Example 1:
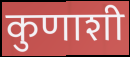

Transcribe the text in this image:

कुणाशी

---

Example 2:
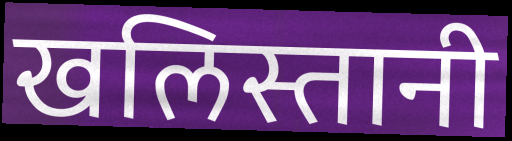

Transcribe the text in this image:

खलिस्तानी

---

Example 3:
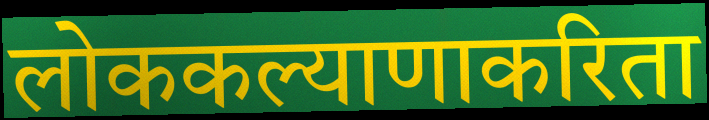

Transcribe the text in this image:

लोककल्याणाकरिता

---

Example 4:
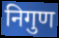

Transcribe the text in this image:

निगुण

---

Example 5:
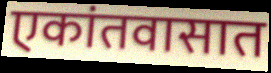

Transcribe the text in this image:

एकांतवासात